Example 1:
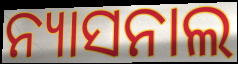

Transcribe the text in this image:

ନ୍ୟାସନାଲ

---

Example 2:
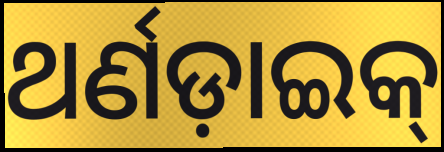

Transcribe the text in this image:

ଥର୍ଣଡ଼ାଇକ୍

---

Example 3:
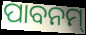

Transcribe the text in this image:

ପାବନମ୍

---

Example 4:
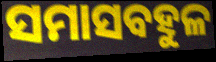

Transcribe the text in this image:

ସମାସବହୁଳ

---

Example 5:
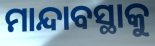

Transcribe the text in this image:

ମାନ୍ଦାବସ୍ଥାକୁ